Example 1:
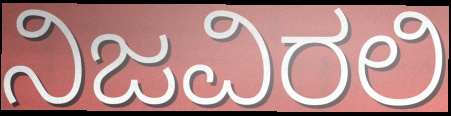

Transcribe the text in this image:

ನಿಜವಿರಲಿ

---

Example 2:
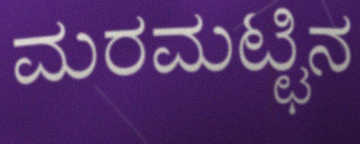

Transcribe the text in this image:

ಮರಮಟ್ಟಿನ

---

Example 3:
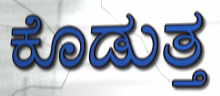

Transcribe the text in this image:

ಕೊಡುತ್ತ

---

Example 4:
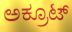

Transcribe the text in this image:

ಅಕ್ರೂಟ್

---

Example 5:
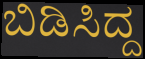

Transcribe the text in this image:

ಬಿಡಿಸಿದ್ದ